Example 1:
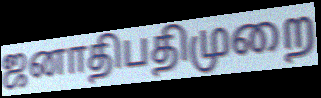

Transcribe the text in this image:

ஜனாதிபதிமுறை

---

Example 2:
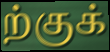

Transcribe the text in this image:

ற்குக்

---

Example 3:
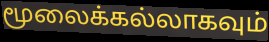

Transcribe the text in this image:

மூலைக்கல்லாகவும்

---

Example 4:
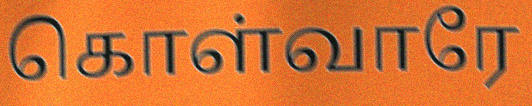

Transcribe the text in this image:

கொள்வாரே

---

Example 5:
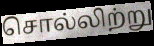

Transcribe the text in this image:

சொல்லிற்று